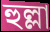
হুল্লা